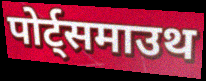
पोर्ट्समाउथ